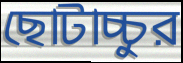
ছোটাচ্চুর